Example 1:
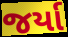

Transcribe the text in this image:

જર્યા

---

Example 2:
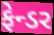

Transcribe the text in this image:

ફેન્ડર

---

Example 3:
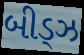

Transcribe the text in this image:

બીડ્ઝ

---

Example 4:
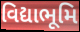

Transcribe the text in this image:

વિદ્યાભૂમિ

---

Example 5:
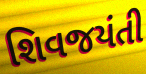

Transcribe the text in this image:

શિવજયંતી